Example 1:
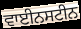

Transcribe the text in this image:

ਵਾਈਨਸਟੀਨ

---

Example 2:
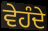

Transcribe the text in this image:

ਵੇਹੰਦੇ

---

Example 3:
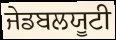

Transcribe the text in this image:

ਜੇਡਬਲਯੂਟੀ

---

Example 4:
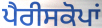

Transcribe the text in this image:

ਪੈਰੀਸਕੋਪਾਂ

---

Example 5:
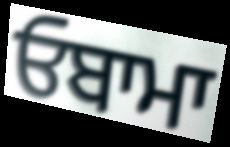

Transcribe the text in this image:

ਓਬਾਮਾ